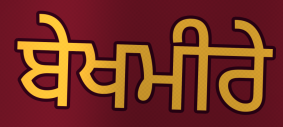
ਬੇਖਮੀਰੇ